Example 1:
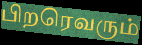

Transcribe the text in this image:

பிறரெவரும்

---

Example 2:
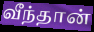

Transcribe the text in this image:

வீந்தான்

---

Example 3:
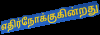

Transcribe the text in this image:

எதிர்நோக்குகின்றது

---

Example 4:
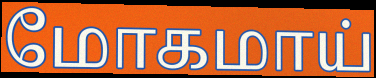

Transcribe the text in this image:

மோகமாய்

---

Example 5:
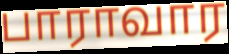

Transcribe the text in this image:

பாராவார